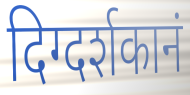
दिग्दर्शकानं